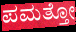
ಪಮತ್ತೋ